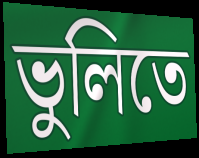
ভুলিতে